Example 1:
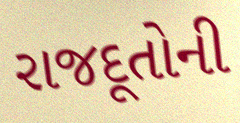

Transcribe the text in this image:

રાજદૂતોની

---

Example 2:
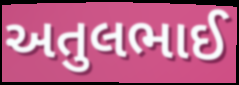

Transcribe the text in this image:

અતુલભાઈ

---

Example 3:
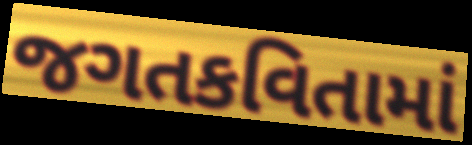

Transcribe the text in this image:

જગતકવિતામાં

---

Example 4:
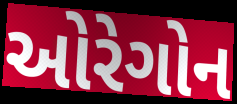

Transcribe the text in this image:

ઓરેગોન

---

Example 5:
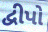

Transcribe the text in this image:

દ્વીપો